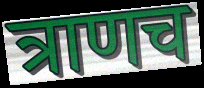
त्राणच